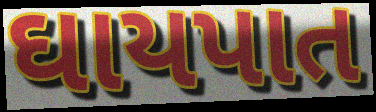
ઘાયપાત